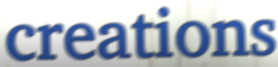
creations